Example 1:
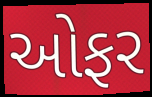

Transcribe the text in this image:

ઓફર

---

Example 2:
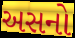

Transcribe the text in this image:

અસનો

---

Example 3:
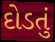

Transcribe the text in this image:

દોડતું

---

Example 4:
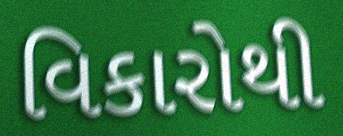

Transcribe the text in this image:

વિકારોથી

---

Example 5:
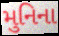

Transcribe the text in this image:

મુનિના